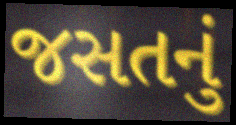
જસતનું